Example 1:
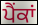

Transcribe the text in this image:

ਪੈਂਕਾਂ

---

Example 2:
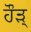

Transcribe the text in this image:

ਹੌੜ੍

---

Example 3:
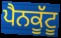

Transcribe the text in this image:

ਪੈਨਕੂੱਟੂ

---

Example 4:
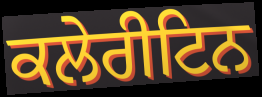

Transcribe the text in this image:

ਕਲੇਰੀਟਿਨ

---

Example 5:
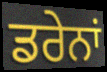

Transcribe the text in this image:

ਡਰੇਨਾਂ